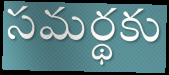
సమర్థకు